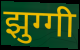
झुग्गी